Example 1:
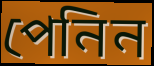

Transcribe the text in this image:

পেনিন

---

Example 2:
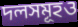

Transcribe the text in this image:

দলসমূহও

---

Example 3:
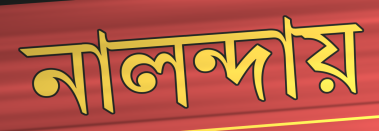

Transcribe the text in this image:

নালন্দায়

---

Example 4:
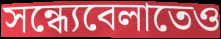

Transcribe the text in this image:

সন্ধ্যেবেলাতেও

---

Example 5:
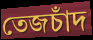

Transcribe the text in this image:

তেজচাঁদ